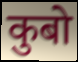
कुबो